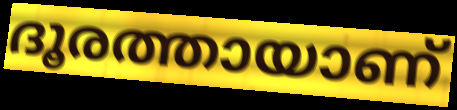
ദൂരത്തായാണ്